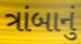
ત્રાંબાનું